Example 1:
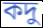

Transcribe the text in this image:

কদু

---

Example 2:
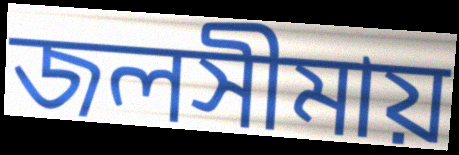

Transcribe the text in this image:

জলসীমায়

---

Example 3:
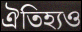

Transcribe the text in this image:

ঐতিহ্যও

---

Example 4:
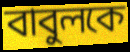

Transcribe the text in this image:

বাবুলকে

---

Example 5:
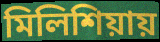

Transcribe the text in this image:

মিলিশিয়ায়